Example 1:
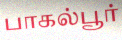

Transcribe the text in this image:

பாகல்பூர்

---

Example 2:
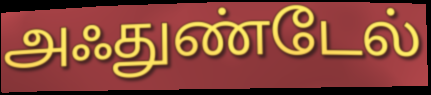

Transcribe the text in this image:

அஃதுண்டேல்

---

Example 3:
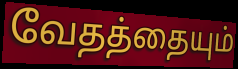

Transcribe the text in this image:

வேதத்தையும்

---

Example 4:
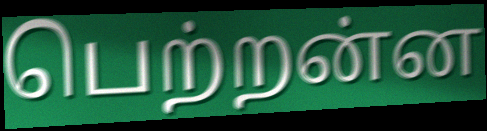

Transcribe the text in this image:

பெற்றன்ன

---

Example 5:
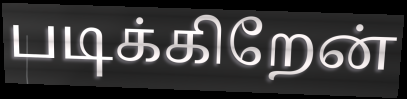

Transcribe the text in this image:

படிக்கிறேன்